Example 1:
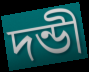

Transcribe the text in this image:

দন্ডী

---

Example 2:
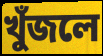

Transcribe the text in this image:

খুঁজলে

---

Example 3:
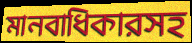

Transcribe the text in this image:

মানবাধিকারসহ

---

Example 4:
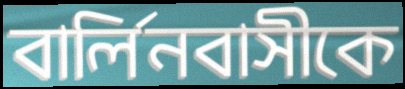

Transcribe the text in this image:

বার্লিনবাসীকে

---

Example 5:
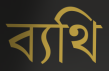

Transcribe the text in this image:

ব্যথি